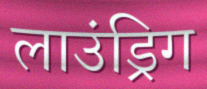
लाउंड्रिग